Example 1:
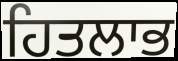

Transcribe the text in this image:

ਹਿਤਲਾਭ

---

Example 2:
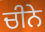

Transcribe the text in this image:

ਚੀਨੇ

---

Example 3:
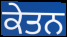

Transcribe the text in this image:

ਕੇਤਨ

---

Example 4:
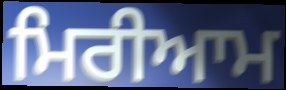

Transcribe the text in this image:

ਮਿਰੀਆਮ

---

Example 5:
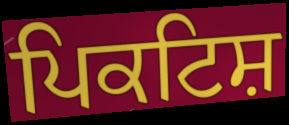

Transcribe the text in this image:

ਪਿਕਟਿਸ਼